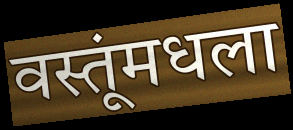
वस्तूंमधला